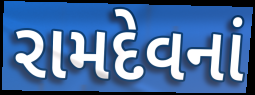
રામદેવનાં